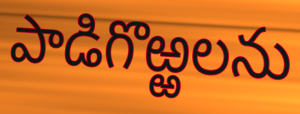
పాడిగొఱ్ఱలను